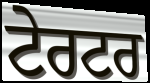
ਟੇਰਟਰ